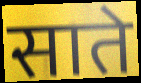
साते